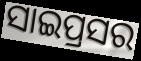
ସାଇପ୍ରସର